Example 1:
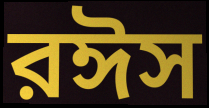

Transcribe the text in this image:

রঈস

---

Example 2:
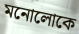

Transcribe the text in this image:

মনোলোকে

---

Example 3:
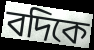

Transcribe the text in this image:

বদিকে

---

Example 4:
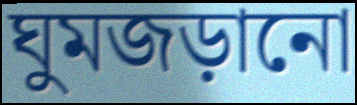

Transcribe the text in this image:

ঘুমজড়ানো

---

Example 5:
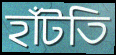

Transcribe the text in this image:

হাঁটতি